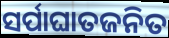
ସର୍ପାଘାତଜନିତ